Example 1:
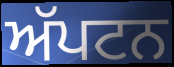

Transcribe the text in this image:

ਅੱਪਟਨ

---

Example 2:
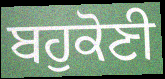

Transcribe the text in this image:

ਬਹੁਕੋਣੀ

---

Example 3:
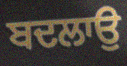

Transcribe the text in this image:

ਬਦਲਾਉ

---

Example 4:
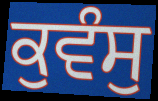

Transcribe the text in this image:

ਕੁਵੰਸੁ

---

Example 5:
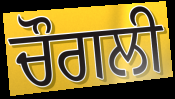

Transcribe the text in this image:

ਚੌਗਲੀ